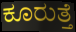
ಕೂರುತ್ತೆ